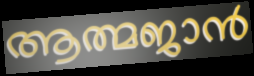
ആത്മജാൻ